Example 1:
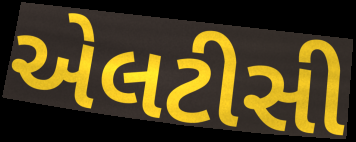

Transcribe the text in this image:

એલટીસી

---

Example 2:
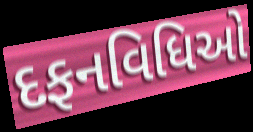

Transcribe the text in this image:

દફનવિધિઓ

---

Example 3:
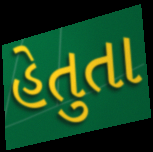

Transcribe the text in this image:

હેતુતા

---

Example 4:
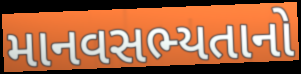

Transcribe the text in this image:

માનવસભ્યતાનો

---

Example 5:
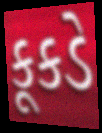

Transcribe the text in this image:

કૂકડે